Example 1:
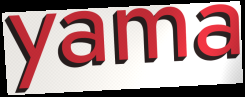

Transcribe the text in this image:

yama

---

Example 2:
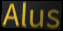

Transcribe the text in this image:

Alus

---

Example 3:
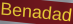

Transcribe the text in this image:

Benadad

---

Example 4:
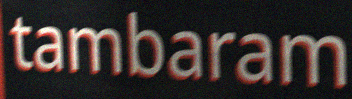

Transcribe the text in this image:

tambaram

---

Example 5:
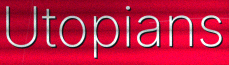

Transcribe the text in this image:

Utopians